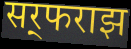
सर्फराझ